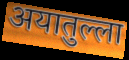
अयातुल्‍ला